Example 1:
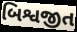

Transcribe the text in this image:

બિશ્વજીત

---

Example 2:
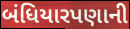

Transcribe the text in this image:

બંધિયારપણાની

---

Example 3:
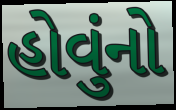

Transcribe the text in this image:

હોવુંનો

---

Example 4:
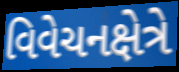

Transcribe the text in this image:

વિવેચનક્ષેત્રે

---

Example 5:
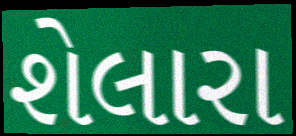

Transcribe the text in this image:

શેલારા